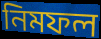
নিমফল